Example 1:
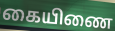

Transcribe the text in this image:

கையிணை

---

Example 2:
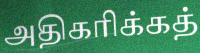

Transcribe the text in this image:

அதிகரிக்கத்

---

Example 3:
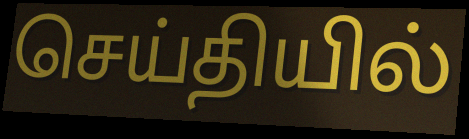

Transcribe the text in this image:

செய்தியில்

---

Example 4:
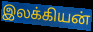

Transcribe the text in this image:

இலக்கியன்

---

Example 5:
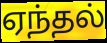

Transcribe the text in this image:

ஏந்தல்